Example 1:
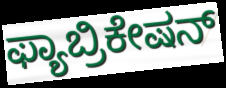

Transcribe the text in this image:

ಫ್ಯಾಬ್ರಿಕೇಷನ್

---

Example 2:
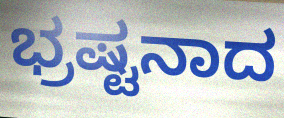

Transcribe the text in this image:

ಭ್ರಷ್ಟನಾದ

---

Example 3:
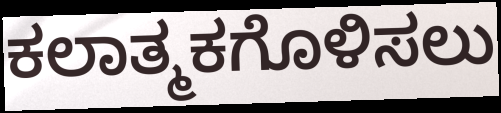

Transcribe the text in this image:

ಕಲಾತ್ಮಕಗೊಳಿಸಲು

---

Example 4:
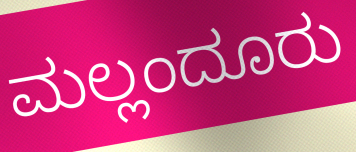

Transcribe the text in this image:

ಮಲ್ಲಂದೂರು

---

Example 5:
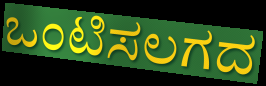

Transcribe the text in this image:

ಒಂಟಿಸಲಗದ